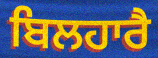
ਬਿਲਹਾਰੈ